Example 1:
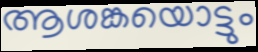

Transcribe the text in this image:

ആശങ്കയൊട്ടും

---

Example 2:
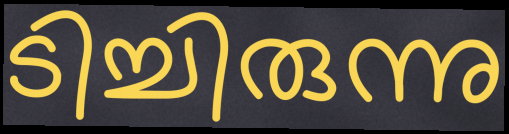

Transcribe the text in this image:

ടിച്ചിരുന്നു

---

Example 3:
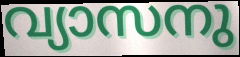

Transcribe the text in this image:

വ്യാസനു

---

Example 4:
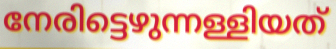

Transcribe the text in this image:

നേരിട്ടെഴുന്നള്ളിയത്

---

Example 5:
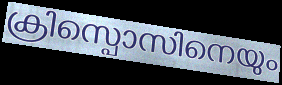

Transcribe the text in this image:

ക്രിസ്പൊസിനെയും